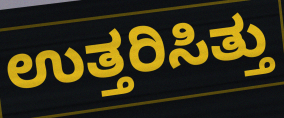
ಉತ್ತರಿಸಿತ್ತು